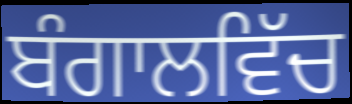
ਬੰਗਾਲਵਿੱਚ